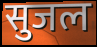
सुजल